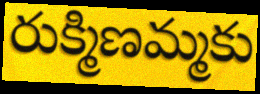
రుక్మిణమ్మకు